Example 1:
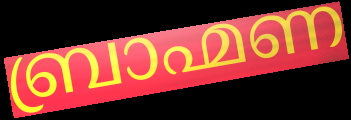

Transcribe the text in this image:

ബ്രാഹ്മണ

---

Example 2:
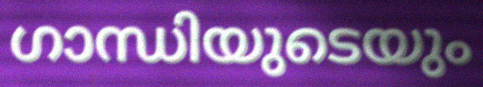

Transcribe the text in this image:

ഗാന്ധിയുടെയും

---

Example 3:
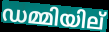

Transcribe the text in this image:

ഡമ്മിയില്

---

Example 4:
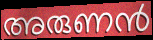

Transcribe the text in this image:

അരുണൻ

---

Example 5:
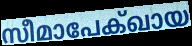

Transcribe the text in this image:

സീമാപേക്ഖായ